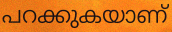
പറക്കുകയാണ്